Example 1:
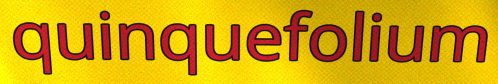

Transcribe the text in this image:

quinquefolium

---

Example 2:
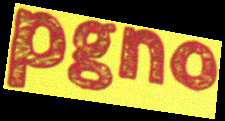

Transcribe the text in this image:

pgno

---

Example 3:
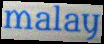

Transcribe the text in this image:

malay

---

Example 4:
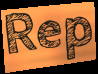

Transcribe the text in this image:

Rep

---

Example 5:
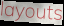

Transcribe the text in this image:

layouts